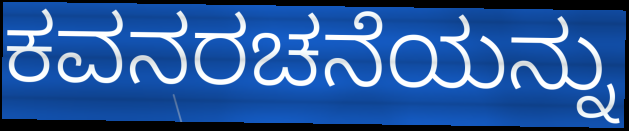
ಕವನರಚನೆಯನ್ನು